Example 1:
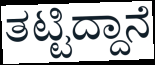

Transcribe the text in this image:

ತಟ್ಟಿದ್ದಾನೆ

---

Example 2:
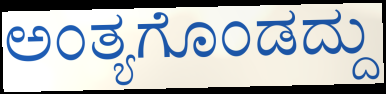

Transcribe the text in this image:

ಅಂತ್ಯಗೊಂಡದ್ದು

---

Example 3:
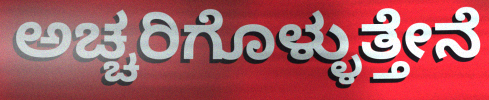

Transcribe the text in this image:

ಅಚ್ಚರಿಗೊಳ್ಳುತ್ತೇನೆ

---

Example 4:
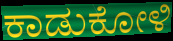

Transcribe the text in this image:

ಕಾಡುಕೋಳಿ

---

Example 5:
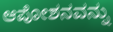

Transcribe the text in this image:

ಆಪೋಶನವನ್ನು